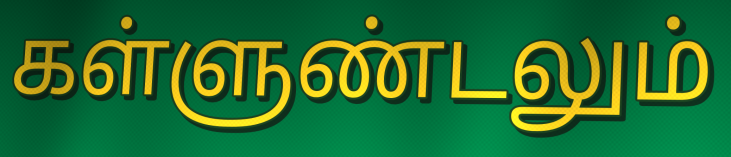
கள்ளுண்டலும்